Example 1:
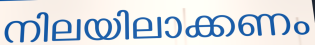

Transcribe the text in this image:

നിലയിലാക്കണം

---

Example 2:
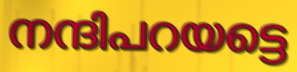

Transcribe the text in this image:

നന്ദിപറയട്ടെ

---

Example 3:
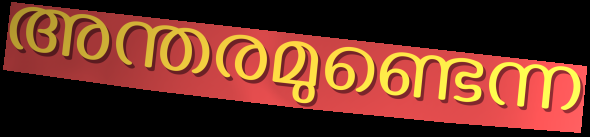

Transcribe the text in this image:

അന്തരമുണ്ടെന്ന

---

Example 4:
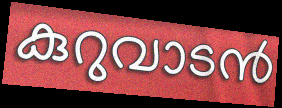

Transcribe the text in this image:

കുറുവാടൻ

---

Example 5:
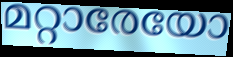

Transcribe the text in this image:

മറ്റാരേയോ